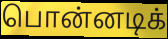
பொன்னடிக்